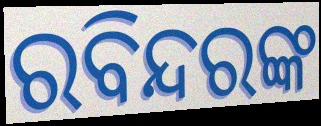
ରବିନ୍ଦରଙ୍କ